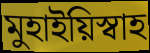
মুহাইয়িস্বাহ